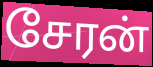
சேரன்